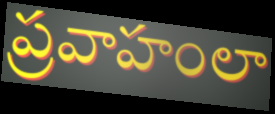
ప్రవాహంలా